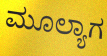
ಮೂಲ್ಯಾಗ